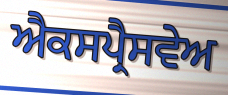
ਐਕਸਪ੍ਰੈਸਵੇਅ